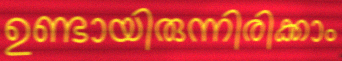
ഉണ്ടായിരുന്നിരിക്കാം